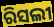
ରିସଲୀ